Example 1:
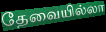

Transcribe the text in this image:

தேவையில்லா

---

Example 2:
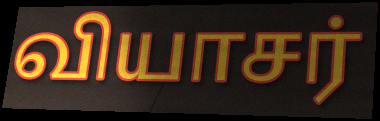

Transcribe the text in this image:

வியாசர்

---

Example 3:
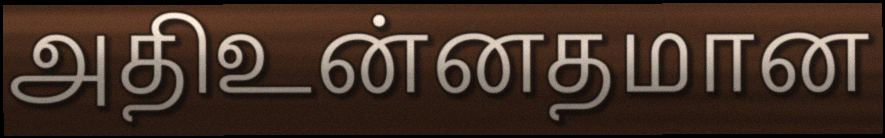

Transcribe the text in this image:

அதிஉன்னதமான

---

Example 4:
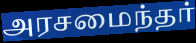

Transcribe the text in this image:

அரசமைந்தர்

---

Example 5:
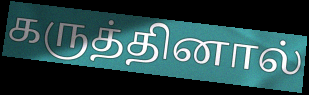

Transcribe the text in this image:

கருத்தினால்